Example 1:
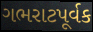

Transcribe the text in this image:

ગભરાટપૂર્વક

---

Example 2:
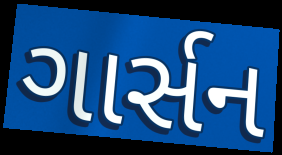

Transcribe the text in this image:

ગાર્સન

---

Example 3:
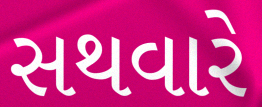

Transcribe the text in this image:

સથવારે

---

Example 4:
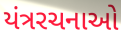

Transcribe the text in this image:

યંત્રરચનાઓ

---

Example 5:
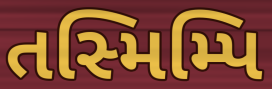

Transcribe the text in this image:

તસ્મિમ્પિ